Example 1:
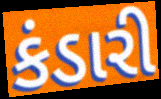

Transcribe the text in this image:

કંડારી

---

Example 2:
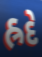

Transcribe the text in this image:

હ્રદે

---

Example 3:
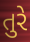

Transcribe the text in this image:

તુરે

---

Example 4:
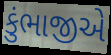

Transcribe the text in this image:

કુંભાજીએ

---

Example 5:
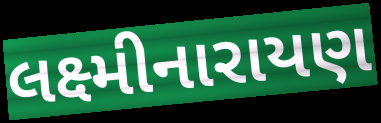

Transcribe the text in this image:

લક્ષ્મીનારાયણ